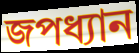
জপধ্যান